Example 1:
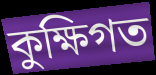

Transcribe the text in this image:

কুক্ষিগত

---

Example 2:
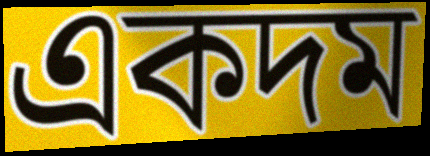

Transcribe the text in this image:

একদম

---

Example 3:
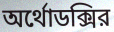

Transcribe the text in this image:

অর্থোডক্সির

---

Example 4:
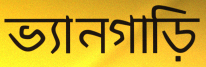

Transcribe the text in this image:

ভ্যানগাড়ি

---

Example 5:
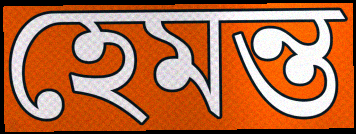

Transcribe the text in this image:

হেমন্ত